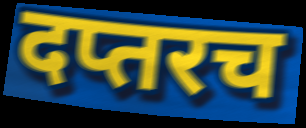
दप्तरच